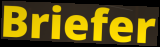
Briefer